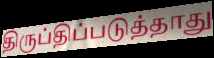
திருப்திப்படுத்தாது